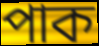
পাক